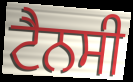
ਟੈਨਸੀ